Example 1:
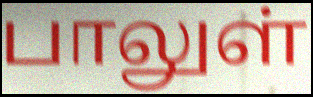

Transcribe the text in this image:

பாலுள்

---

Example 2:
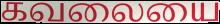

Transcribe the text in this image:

கவலையை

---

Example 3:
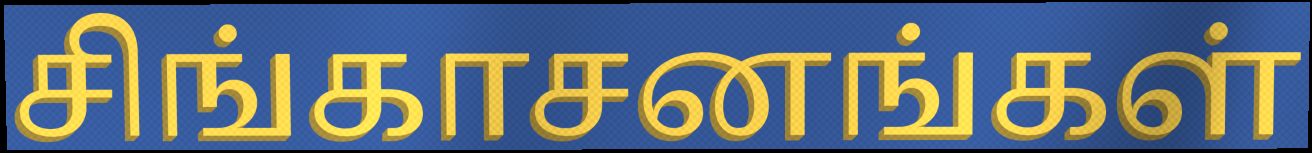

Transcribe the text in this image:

சிங்காசனங்கள்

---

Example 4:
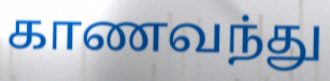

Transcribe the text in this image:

காணவந்து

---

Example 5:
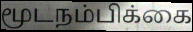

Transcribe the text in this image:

மூடநம்பிக்கை